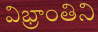
విభ్రాంతిని